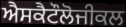
ਐਸਕੈਟੌਲੋਜੀਕਲ